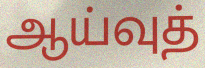
ஆய்வுத்